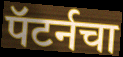
पॅटर्नचा